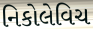
નિકોલેવિચ